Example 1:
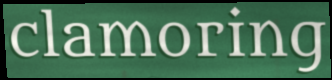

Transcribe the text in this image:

clamoring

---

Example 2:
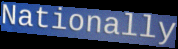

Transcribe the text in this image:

Nationally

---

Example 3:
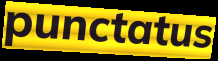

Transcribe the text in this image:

punctatus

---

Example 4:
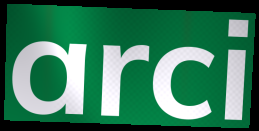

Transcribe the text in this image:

arci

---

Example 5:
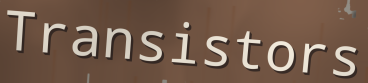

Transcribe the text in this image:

Transistors